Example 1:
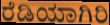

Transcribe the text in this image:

ರೆಡಿಯಾಗಿರಿ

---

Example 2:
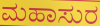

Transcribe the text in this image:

ಮಹಾಸುರ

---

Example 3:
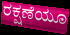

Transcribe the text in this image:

ರಕ್ಷಣೆಯೂ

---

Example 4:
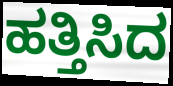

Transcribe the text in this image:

ಹತ್ತಿಸಿದ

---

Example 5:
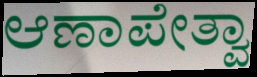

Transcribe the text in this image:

ಆಣಾಪೇತ್ವಾ